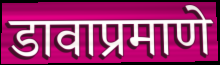
डावाप्रमाणे